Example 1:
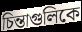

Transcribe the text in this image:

চিন্তাগুলিকে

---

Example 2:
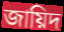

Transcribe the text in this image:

জায়িদ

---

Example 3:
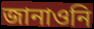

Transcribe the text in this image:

জানাওনি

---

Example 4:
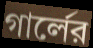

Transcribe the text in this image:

গার্লের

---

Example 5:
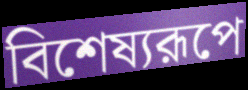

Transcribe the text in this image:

বিশেষ্যরূপে